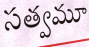
సత్వమూ